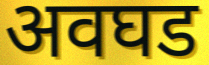
अवघड